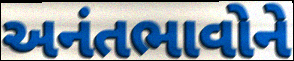
અનંતભાવોને